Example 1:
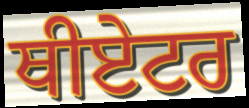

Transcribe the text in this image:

ਥੀਏਟਰ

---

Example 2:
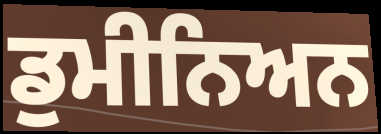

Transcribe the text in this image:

ਡੁਮੀਨਿਅਨ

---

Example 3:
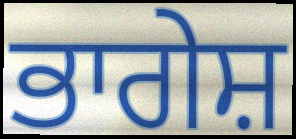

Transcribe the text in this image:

ਭਾਗੇਸ਼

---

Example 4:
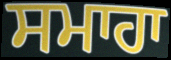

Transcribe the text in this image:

ਸਮਾਹਾ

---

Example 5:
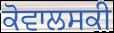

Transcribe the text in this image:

ਕੋਵਾਲਸਕੀ